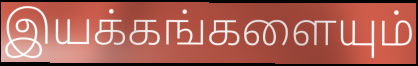
இயக்கங்களையும்